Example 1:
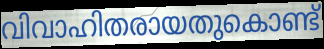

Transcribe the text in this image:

വിവാഹിതരായതുകൊണ്ട്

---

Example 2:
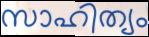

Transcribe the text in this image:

സാഹിത്യം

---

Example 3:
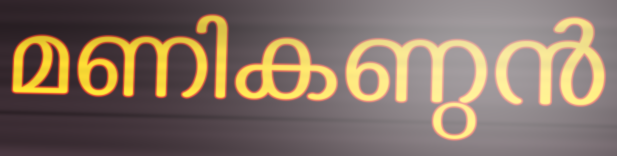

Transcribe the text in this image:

മണികണ്ഠൻ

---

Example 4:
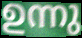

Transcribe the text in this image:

ഉന്നു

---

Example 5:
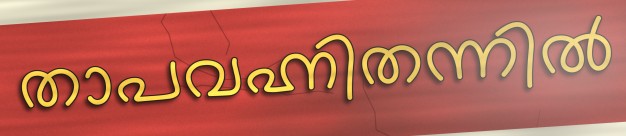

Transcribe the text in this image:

താപവഹ്നിതന്നിൽ